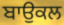
ਬਾਉਕਲ